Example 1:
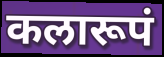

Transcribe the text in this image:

कलारूपं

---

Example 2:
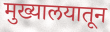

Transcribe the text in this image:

मुख्यालयातून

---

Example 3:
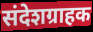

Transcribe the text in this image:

संदेशग्राहक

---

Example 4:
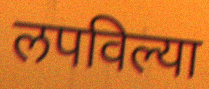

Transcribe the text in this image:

लपविल्या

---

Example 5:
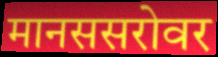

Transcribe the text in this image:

मानससरोवर